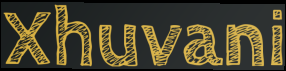
Xhuvani